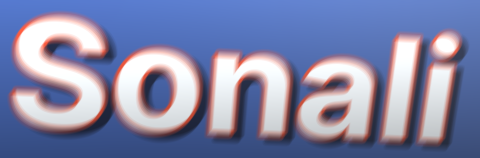
Sonali